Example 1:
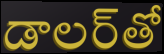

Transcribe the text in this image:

డాలర్‌తో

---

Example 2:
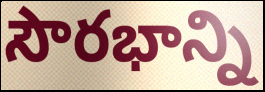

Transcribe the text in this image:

సౌరభాన్ని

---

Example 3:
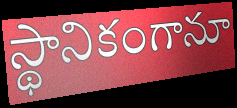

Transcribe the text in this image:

స్థానికంగానూ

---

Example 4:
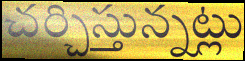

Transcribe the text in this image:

చర్చిస్తున్నట్లు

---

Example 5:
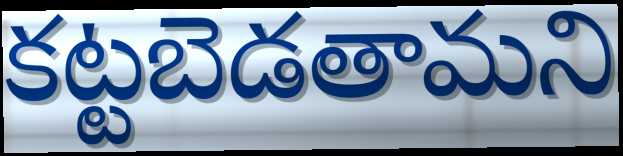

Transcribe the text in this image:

కట్టబెడతామని